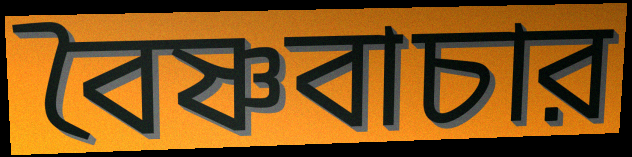
বৈষ্ণবাচার